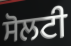
ਸੋਲਟੀ